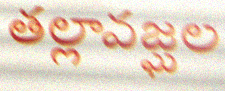
తల్లావజ్ఘల